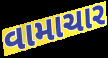
વામાચાર